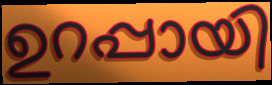
ഉറപ്പായി